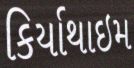
કિર્યાથાઇમ